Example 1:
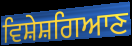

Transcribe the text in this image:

ਵਿਸ਼ੇਸ਼ਗਿਆਣ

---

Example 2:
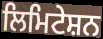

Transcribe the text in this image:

ਲਿਮਿਟੇਸ਼ਨ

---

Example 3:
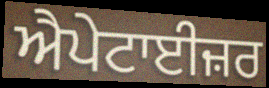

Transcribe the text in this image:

ਐਪੇਟਾਈਜ਼ਰ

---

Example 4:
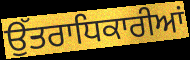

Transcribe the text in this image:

ਉੱਤਰਾਧਿਕਾਰੀਆਂ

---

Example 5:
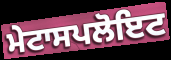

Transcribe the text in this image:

ਮੇਟਾਸਪਲੋਇਟ